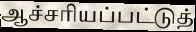
ஆச்சரியப்பட்டுத்